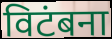
विटंबना